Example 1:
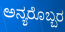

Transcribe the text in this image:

ಅನ್ಯರೊಬ್ಬರ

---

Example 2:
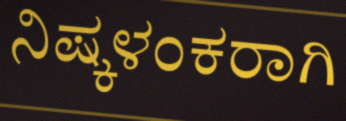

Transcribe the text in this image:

ನಿಷ್ಕಳಂಕರಾಗಿ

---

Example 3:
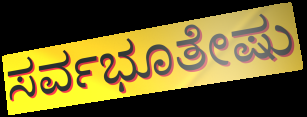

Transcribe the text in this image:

ಸರ್ವಭೂತೇಷು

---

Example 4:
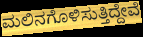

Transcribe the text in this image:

ಮಲಿನಗೊಳಿಸುತ್ತಿದ್ದೇವೆ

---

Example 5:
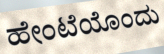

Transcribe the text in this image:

ಹೇಂಟೆಯೊಂದು